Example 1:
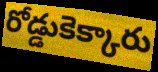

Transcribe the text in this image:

రోడ్డుకెక్కారు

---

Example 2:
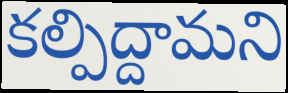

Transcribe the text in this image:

కల్పిద్దామని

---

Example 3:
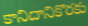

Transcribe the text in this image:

కానిదానికొరకు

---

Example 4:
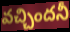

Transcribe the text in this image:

వచ్చిందనీ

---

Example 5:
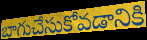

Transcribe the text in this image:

బాగుచేసుకోవడానికి